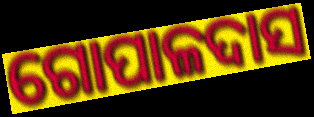
ଗୋପାଳଦାସ